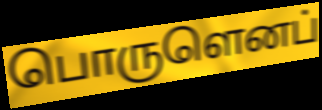
பொருளெனப்